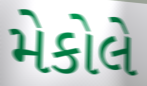
મેકોલે